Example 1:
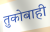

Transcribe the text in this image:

तुकोबाही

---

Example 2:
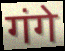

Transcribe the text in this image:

गंगे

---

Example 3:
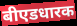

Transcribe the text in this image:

बीएडधारक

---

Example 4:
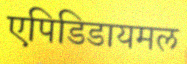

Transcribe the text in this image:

एपिडिडायमल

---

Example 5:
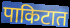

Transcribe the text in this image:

पाकिटात